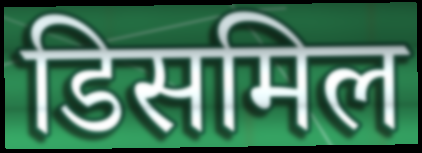
डिसमिल